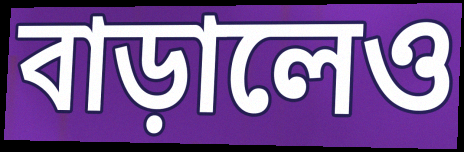
বাড়ালেও